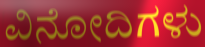
ವಿನೋದಿಗಳು